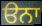
ੳਨਾ